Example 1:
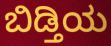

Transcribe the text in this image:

ಬಿಡ್ತಿಯ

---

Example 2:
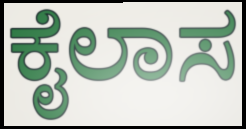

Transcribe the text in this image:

ಕೈಲಾಸ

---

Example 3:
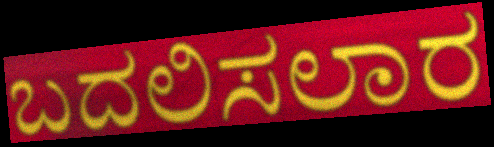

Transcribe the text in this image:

ಬದಲಿಸಲಾರ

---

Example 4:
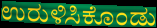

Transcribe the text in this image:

ಉರುಳಿಸಿಕೊಂಡು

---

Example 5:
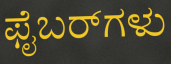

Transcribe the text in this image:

ಫೈಬರ್‌ಗಳು